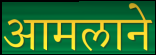
आमलाने